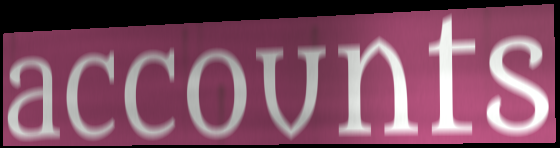
accounts